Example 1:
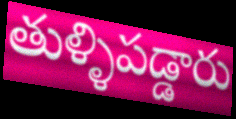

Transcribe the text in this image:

తుళ్ళిపడ్డారు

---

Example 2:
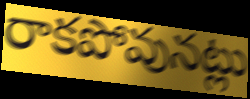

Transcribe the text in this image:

రాకపోవునట్లు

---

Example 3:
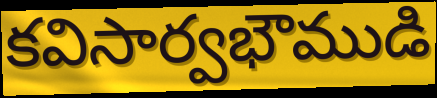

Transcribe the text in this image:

కవిసార్వభౌముడి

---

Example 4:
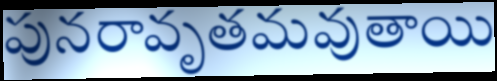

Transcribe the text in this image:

పునరావృతమవుతాయి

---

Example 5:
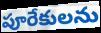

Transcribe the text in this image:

పూరేకులను